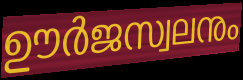
ഊർജസ്വലനും